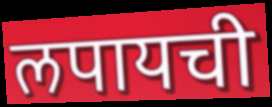
लपायची